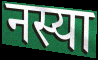
नस्या